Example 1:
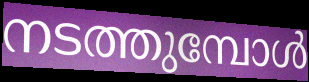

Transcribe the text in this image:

നടത്തുമ്പോൾ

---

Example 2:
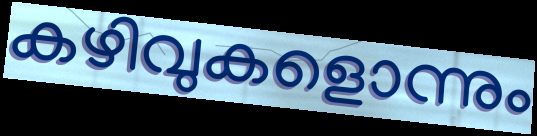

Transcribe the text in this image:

കഴിവുകളൊന്നും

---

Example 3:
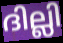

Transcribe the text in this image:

ദില്ലി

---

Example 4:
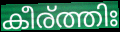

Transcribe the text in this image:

കീര്ത്തിഃ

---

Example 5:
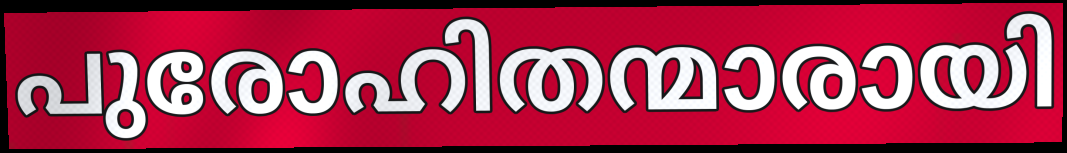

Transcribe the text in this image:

പുരോഹിതന്മാരായി